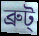
ব্রুট্